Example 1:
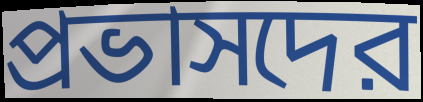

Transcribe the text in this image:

প্রভাসদের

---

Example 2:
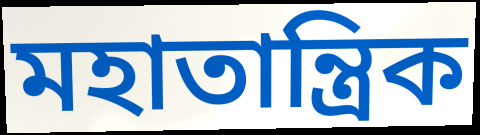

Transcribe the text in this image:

মহাতান্ত্রিক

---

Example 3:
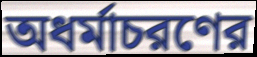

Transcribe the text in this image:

অধর্মাচরণের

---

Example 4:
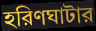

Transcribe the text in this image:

হরিণঘাটার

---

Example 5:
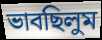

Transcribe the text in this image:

ভাবছিলুম